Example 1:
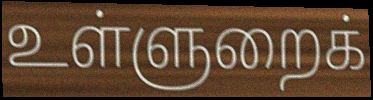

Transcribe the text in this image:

உள்ளுறைக்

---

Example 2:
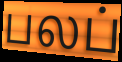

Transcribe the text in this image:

பலப்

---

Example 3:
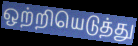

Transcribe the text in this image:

ஒற்றியெடுத்து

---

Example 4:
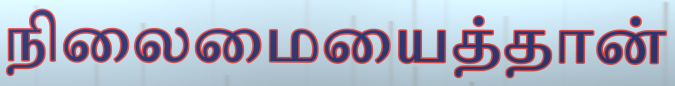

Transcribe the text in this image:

நிலைமையைத்தான்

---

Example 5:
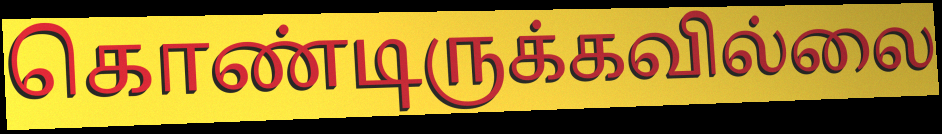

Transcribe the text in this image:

கொண்டிருக்கவில்லை